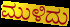
ಮುಳಿದು